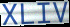
XLIV